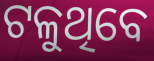
ଟଳୁଥିବେ